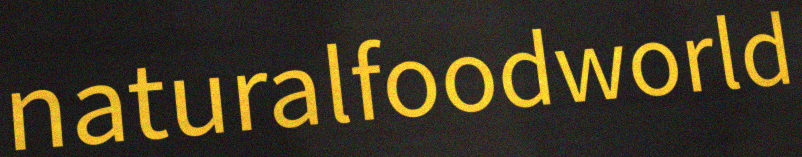
naturalfoodworld